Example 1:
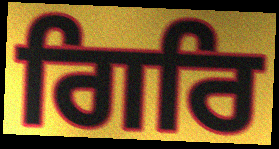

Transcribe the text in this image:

ਗਿਰਿ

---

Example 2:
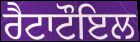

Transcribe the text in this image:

ਰੈਟਾਟੌਇਲ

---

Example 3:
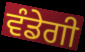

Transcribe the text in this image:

ਵੰਡੇਗੀ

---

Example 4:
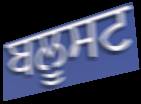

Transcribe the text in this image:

ਬਲੂਸਟ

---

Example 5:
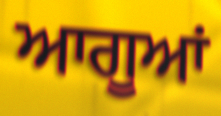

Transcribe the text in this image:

ਆਗੂਆਂ